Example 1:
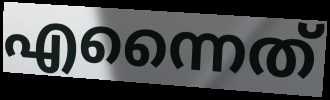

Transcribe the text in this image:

എന്നൈത്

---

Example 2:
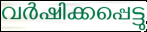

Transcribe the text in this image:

വർഷിക്കപ്പെട്ടു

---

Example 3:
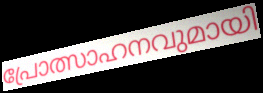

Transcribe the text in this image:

പ്രോത്സാഹനവുമായി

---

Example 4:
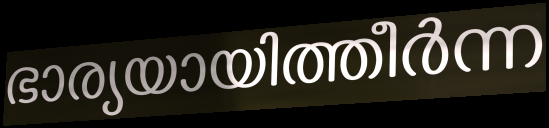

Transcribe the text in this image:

ഭാര്യയായിത്തീർന്ന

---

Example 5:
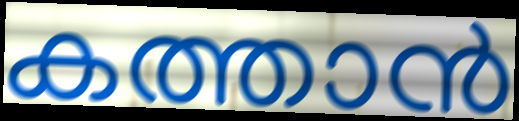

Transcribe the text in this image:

കത്താൻ